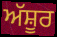
ਅੱਸ਼ੂਰ